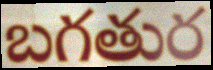
బగతుర